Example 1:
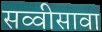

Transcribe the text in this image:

सव्वीसावा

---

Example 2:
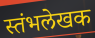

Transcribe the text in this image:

स्तंभलेखक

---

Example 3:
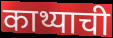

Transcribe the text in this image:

काथ्याची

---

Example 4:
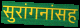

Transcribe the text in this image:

सुरांगनांसह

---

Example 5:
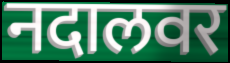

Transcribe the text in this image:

नदालवर